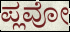
ಪ್ಲವೋ